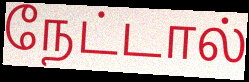
நேட்டால்